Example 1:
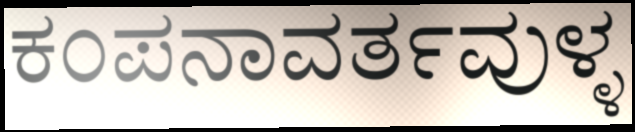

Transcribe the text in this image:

ಕಂಪನಾವರ್ತವುಳ್ಳ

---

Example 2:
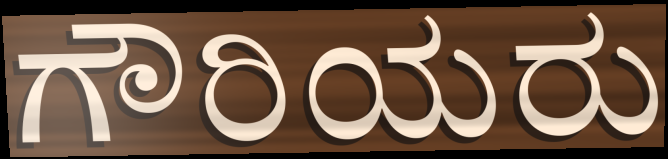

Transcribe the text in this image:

ಗೌರಿಯರು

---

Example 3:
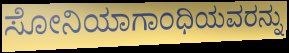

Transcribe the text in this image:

ಸೋನಿಯಾಗಾಂಧಿಯವರನ್ನು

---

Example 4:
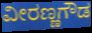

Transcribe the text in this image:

ವೀರಣ್ಣಗೌಡ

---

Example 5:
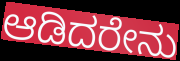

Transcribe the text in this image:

ಆಡಿದರೇನು